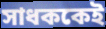
সাধককেই